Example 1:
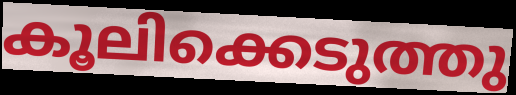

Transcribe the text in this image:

കൂലിക്കെടുത്തു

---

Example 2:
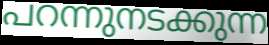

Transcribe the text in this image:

പറന്നുനടക്കുന്ന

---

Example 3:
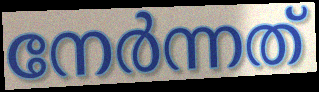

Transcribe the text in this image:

നേർന്നത്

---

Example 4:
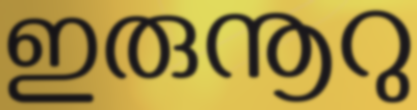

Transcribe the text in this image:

ഇരുനൂറു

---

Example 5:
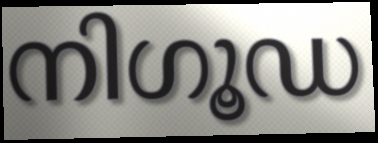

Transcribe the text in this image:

നിഗൂഡ